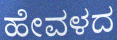
ಹೇವಳದ